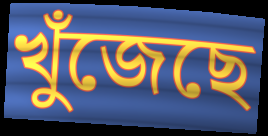
খুঁজেছে